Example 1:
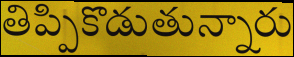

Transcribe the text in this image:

తిప్పికొడుతున్నారు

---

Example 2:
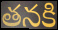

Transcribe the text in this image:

తనకి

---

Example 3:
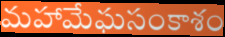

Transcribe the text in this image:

మహామేఘసంకాశం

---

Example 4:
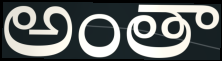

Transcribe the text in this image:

అంతా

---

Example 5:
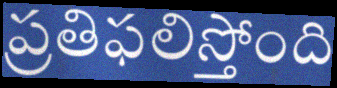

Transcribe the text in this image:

ప్రతిఫలిస్తోంది